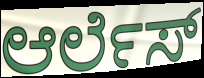
ಆರ್ಲೆಸ್